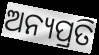
ଅନ୍ୟପ୍ରତି